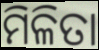
ମିଳିତା